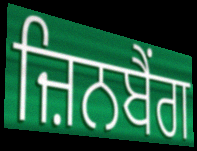
ਜ਼ਿਨਬੈਂਗ